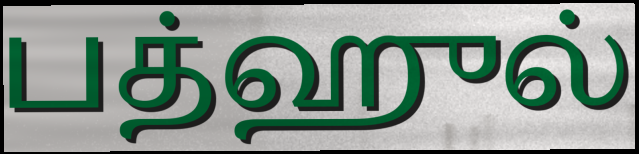
பத்ஹுல்